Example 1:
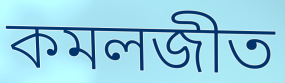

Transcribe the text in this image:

কমলজীত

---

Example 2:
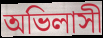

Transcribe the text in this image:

অভিলাসী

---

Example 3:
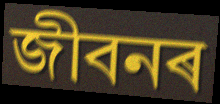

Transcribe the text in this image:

জীবনৰ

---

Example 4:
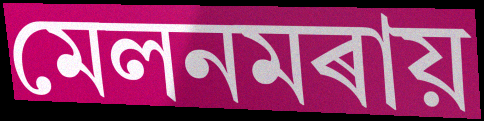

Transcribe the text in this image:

মেলনমৰায়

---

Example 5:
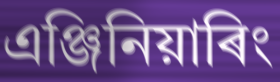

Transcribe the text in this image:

এঞ্জিনিয়াৰিং